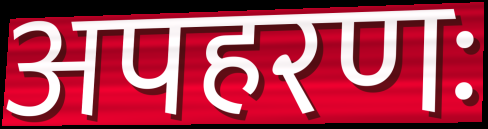
अपहरणः